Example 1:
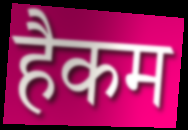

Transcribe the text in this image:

हैकम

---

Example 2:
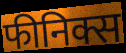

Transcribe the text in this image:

फीनिक्स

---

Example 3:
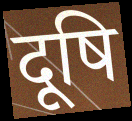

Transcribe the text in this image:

दूषि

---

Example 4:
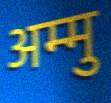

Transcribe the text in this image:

अम्मु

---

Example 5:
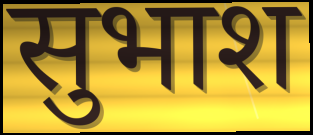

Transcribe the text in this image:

सुभाश